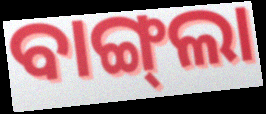
ବାଙ୍ଗ୍‍ଲା